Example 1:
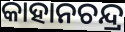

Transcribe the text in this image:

କାହାନଚନ୍ଦ୍ର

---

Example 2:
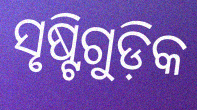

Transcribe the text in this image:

ସୃଷ୍ଟିଗୁଡ଼ିକ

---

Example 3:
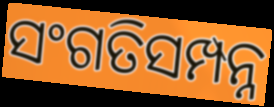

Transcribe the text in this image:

ସଂଗତିସମ୍ପନ୍ନ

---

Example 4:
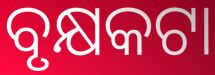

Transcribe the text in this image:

ବୃକ୍ଷକଟା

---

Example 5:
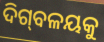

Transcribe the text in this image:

ଦିଗ୍‌ବଳୟକୁ